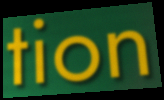
tion